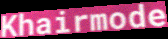
Khairmode